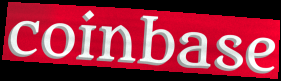
coinbase